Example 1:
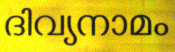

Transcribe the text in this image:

ദിവ്യനാമം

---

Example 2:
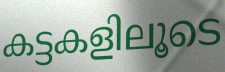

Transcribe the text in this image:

കട്ടകളിലൂടെ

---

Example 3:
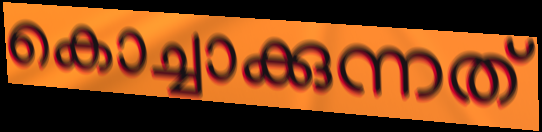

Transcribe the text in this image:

കൊച്ചാക്കുന്നത്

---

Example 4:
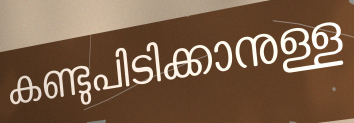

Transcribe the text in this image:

കണ്ടുപിടിക്കാനുള്ള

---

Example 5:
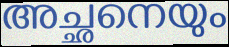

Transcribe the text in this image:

അച്ഛനെയും